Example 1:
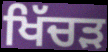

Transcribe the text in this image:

ਖਿੱਚੜ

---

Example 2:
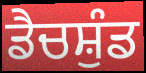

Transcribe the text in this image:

ਡੈਚਸ਼ੁੰਡ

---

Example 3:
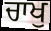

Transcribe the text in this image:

ਚਾਖੁ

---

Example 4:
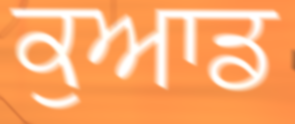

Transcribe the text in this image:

ਕੁਆਡ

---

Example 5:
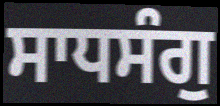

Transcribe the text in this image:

ਸਾਧਸੰਗੁ